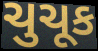
ચુચૂક